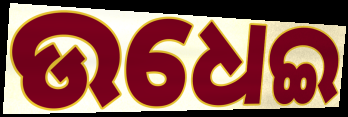
ଉଧେଇ